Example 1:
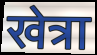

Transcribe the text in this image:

खेत्रा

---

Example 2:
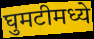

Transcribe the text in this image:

घुमटीमध्ये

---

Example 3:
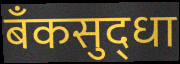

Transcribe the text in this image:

बँकसुद्धा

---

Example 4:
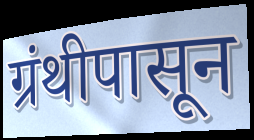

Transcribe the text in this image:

ग्रंथीपासून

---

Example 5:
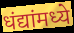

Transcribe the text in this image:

धंद्यांमध्ये